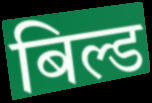
बिल्ड